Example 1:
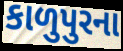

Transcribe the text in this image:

કાળુપુરના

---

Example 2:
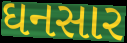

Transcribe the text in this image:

ઘનસાર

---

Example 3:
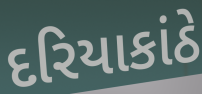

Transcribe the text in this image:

દરિયાકાંઠે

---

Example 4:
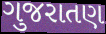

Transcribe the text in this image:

ગુજરાતણ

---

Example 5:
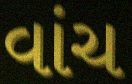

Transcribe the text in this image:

વાંચ